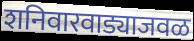
शनिवारवाड्याजवळ